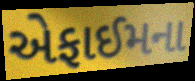
એફાઈમના